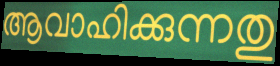
ആവാഹിക്കുന്നതു